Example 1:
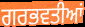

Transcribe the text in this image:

ਗਰਭਵਤੀਆਂ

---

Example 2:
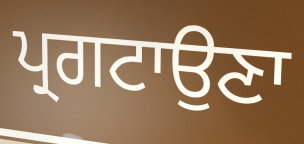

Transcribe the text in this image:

ਪ੍ਰਗਟਾਉਣਾ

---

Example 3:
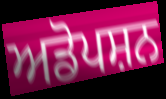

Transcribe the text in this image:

ਅਡੋਪਸ਼ਨ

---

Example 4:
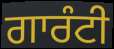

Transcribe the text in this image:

ਗਾਰੰਟੀ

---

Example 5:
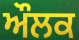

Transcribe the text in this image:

ਔਲਕ